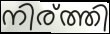
നിര്ത്തി